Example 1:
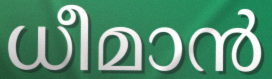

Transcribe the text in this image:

ധീമാൻ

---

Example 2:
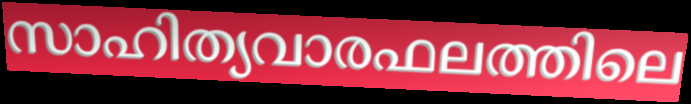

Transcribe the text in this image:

സാഹിത്യവാരഫലത്തിലെ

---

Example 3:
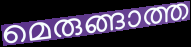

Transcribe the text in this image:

മെരുങ്ങാത്ത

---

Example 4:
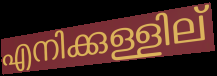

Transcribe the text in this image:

എനിക്കുള്ളില്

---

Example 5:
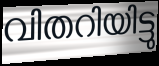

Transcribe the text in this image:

വിതറിയിട്ടു